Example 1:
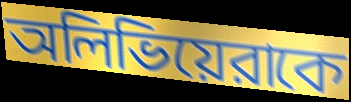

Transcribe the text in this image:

অলিভিয়েরাকে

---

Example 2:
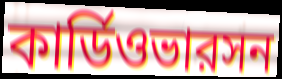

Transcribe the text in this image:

কার্ডিওভারসন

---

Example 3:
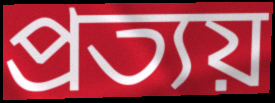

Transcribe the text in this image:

প্রত্যয়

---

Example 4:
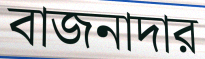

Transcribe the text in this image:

বাজনাদার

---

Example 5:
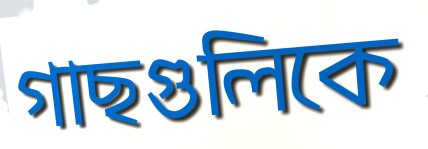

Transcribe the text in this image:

গাছগুলিকে